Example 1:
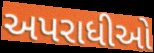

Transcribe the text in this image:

અપરાધીઓ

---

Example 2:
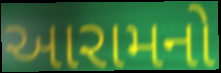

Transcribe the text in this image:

આરામનો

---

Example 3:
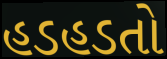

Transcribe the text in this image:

હડહડતો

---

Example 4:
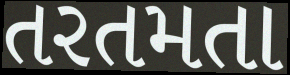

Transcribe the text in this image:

તરતમતા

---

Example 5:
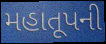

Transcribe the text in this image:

મહાતૂપની